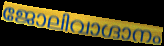
ജോലിവാഗ്ദാനം